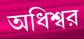
অধিশ্বর